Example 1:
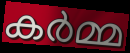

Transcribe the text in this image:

കർമ്മ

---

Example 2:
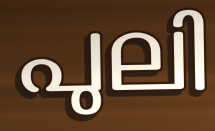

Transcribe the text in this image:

പുലി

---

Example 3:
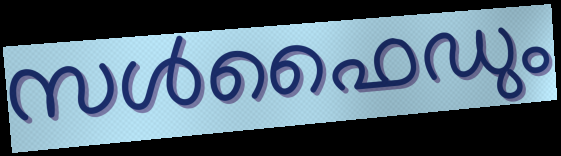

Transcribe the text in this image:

സൾഫൈഡും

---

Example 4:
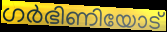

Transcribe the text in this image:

ഗർഭിണിയോട്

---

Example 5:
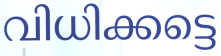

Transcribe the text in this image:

വിധിക്കട്ടെ